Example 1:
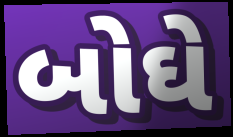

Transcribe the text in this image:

બોઘે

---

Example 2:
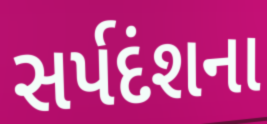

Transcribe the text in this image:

સર્પદંશના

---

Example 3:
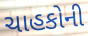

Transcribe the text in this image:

ચાહકોની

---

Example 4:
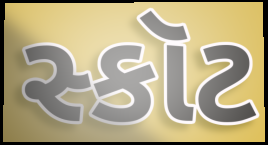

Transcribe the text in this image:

સ્કૉટ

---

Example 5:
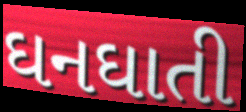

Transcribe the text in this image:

ઘનઘાતી